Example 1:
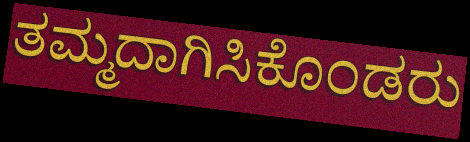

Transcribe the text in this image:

ತಮ್ಮದಾಗಿಸಿಕೊಂಡರು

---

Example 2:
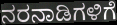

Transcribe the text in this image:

ನರನಾಡಿಗಳಿಗೆ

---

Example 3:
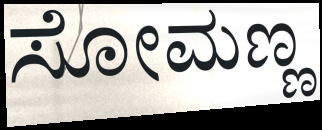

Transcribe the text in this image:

ಸೋಮಣ್ಣ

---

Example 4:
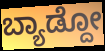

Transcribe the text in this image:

ಬ್ಯಾಡ್ದೋ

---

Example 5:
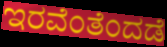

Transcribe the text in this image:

ಇರವೆಂತೆಂದಡೆ